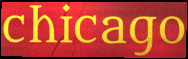
chicago